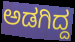
ಅಡಗಿದ್ದ